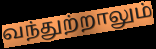
வந்துற்றாலும்